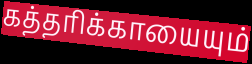
கத்தரிக்காயையும்